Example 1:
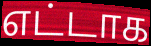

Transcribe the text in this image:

எட்டாக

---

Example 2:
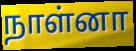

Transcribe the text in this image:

நாள்னா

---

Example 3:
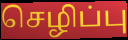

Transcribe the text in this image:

செழிப்பு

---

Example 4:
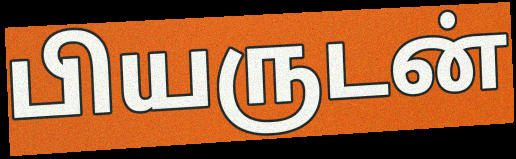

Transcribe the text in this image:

பியருடன்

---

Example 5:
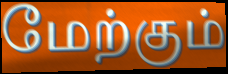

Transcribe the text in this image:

மேற்கும்